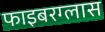
फाइबरग्लास